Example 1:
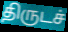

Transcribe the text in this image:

திருடச்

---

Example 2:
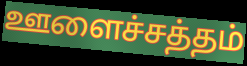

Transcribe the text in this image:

ஊளைச்சத்தம்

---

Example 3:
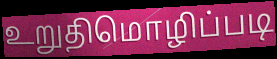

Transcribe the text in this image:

உறுதிமொழிப்படி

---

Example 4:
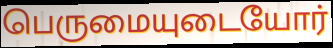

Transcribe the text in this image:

பெருமையுடையோர்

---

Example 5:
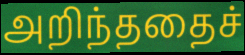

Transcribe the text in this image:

அறிந்ததைச்